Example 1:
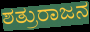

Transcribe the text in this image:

ಶತ್ರುರಾಜನ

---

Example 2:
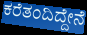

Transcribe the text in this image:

ಕರೆತಂದಿದ್ದೇನೆ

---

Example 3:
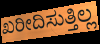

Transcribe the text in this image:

ಖರೀದಿಸುತ್ತಿಲ್ಲ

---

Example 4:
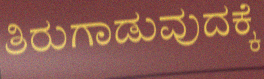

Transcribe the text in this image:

ತಿರುಗಾಡುವುದಕ್ಕೆ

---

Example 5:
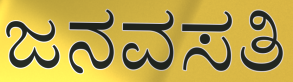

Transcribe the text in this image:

ಜನವಸತಿ